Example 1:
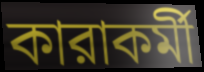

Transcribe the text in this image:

কারাকর্মী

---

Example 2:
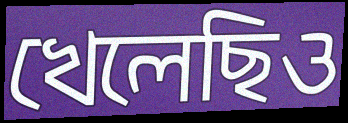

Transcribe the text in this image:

খেলেছিও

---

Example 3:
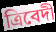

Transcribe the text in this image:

ত্রিবেদী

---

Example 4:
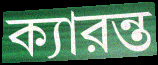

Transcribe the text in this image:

ক্যারন্ত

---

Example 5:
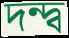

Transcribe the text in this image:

দন্দ্ব